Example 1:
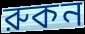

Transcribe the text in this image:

রুকন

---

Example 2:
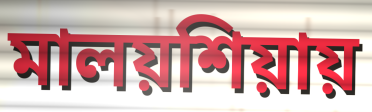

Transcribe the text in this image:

মালয়শিয়ায়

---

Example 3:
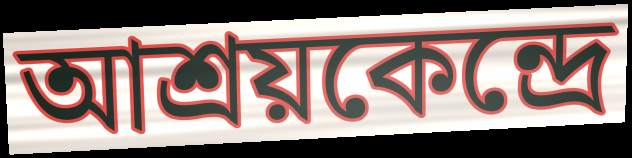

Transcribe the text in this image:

আশ্রয়কেন্দ্রে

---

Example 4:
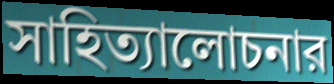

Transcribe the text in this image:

সাহিত্যালোচনার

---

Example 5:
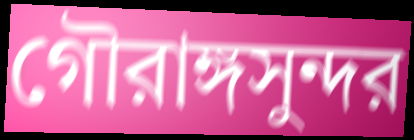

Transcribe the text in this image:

গৌরাঙ্গসুন্দর